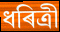
ধৰিত্ৰী